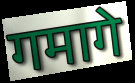
गमागे